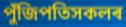
পুঁজিপতিসকলৰ